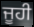
ਜੂਹੀ